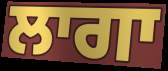
ਲਾਗਾ